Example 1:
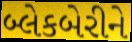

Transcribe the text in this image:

બ્લેકબેરીને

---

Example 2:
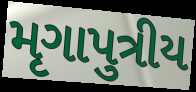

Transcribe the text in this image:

મૃગાપુત્રીય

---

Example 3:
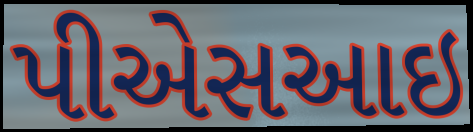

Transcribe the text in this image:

પીએસઆઇ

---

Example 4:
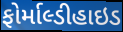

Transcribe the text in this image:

ફોર્માલ્ડીહાઇડ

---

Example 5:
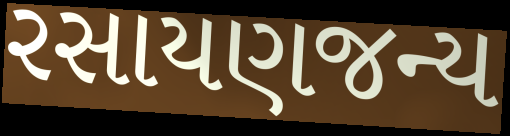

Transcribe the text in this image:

રસાયણજન્ય